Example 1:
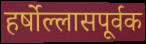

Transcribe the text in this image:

हर्षोल्लासपूर्वक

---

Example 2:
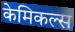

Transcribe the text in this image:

केमिकल्स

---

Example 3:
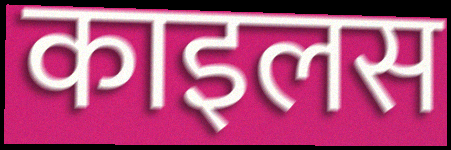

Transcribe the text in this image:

काइलस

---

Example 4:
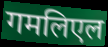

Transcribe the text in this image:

गमलिएल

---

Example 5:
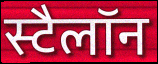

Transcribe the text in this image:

स्टैलॉन